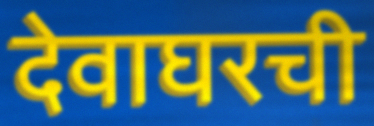
देवाघरची